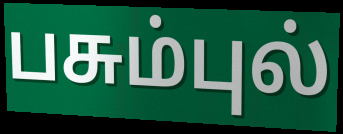
பசும்புல்